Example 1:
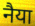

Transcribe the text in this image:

नैया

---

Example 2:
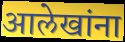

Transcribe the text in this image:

आलेखांना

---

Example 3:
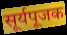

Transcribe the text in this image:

सूर्यपूजक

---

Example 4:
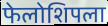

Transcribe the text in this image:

फेलोशिपला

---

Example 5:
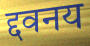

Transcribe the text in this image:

द्दवनय